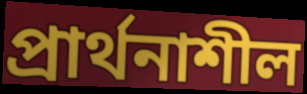
প্রার্থনাশীল